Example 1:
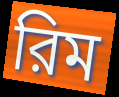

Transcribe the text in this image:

রিম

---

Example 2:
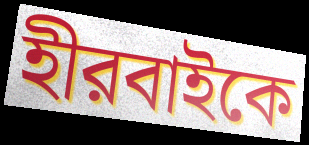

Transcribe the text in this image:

হীরবাইকে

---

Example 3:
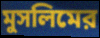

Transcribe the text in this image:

মুসলিমের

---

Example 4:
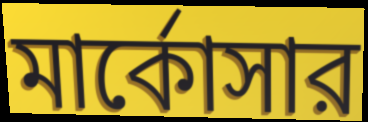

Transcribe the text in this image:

মার্কোসার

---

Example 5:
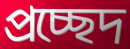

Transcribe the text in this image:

প্রচ্ছেদ